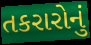
તકરારોનું